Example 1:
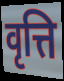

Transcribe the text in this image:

वृत्ति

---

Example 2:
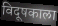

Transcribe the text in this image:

विदूषकाला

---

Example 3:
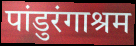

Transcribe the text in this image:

पांडुरंगाश्रम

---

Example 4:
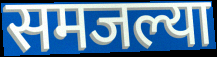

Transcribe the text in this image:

समजल्या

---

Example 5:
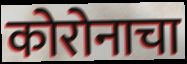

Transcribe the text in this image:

कोरोनाचा